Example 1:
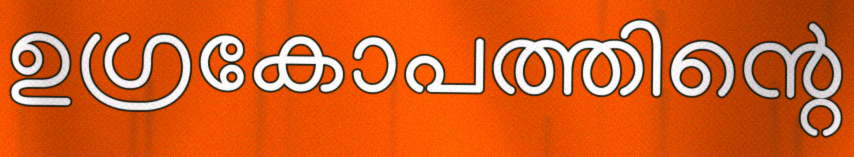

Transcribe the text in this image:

ഉഗ്രകോപത്തിന്റെ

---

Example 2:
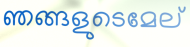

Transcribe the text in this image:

ഞങ്ങളുടെമേല്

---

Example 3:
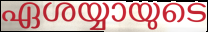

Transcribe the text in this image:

ഏശയ്യായുടെ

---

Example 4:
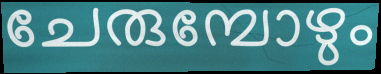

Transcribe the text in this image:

ചേരുമ്പോഴും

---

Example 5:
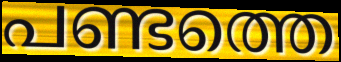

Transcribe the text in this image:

പണ്ടത്തെ